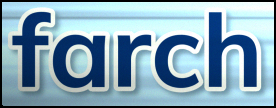
farch